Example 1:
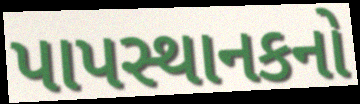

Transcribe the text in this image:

પાપસ્થાનકનો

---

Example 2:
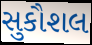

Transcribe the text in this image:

સુકૌશલ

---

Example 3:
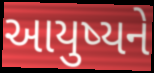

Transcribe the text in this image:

આયુષ્યને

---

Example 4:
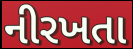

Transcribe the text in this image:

નીરખતા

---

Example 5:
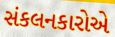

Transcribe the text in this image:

સંકલનકારોએ